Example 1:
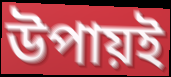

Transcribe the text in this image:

উপায়ই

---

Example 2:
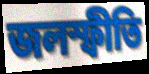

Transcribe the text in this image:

জলস্ফীতি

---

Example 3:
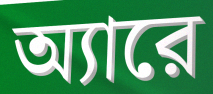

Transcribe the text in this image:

অ্যারে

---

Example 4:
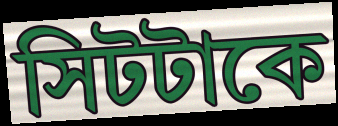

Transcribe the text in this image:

সিটটাকে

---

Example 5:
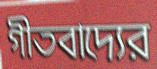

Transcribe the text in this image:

গীতবাদ্যের